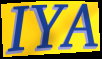
IYA